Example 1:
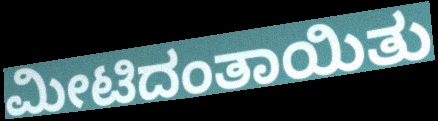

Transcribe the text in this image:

ಮೀಟಿದಂತಾಯಿತು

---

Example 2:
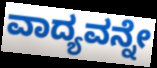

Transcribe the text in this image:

ವಾದ್ಯವನ್ನೇ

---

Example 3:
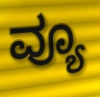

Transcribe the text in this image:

ವ್ಯೂ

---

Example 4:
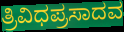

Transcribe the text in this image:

ತ್ರಿವಿಧಪ್ರಸಾದವ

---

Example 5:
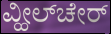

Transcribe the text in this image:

ವ್ಹೀಲ್‌ಚೇರ್